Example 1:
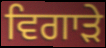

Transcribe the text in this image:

ਵਿਗਾੜੇ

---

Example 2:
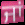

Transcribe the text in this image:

ਜਾਂ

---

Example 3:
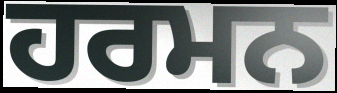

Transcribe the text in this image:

ਹਰਮਨ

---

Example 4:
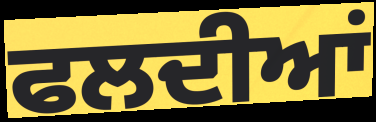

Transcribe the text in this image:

ਫਲਦੀਆਂ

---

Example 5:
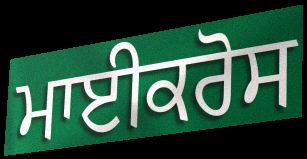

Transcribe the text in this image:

ਮਾਈਕਰੋਸ